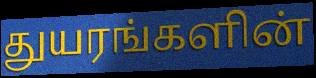
துயரங்களின்